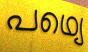
പഥ്യെ